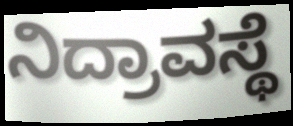
ನಿದ್ರಾವಸ್ಥೆ